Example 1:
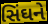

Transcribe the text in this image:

સિંઘને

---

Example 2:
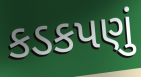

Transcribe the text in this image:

કડકપણું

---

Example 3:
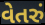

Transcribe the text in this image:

વેતરું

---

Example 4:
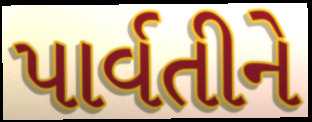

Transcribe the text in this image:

પાર્વતીને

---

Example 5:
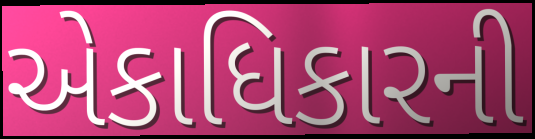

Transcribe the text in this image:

એકાધિકારની